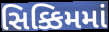
સિક્કિમમાં